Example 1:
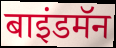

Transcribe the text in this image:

बाइंडमॅन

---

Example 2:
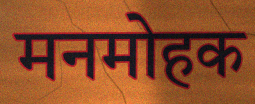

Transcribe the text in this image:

मनमोहक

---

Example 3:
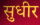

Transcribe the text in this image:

सुधीर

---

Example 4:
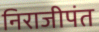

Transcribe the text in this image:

निराजीपंत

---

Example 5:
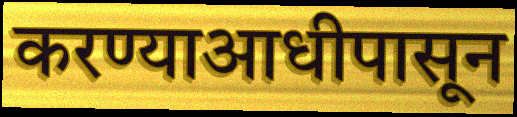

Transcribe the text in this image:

करण्याआधीपासून